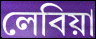
লেবিয়া